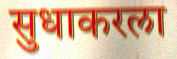
सुधाकरला